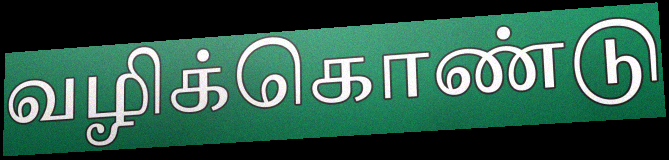
வழிக்கொண்டு